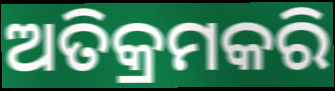
ଅତିକ୍ରମକରି